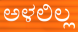
ಅಳಲಿಲ್ಲ